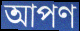
আপণ